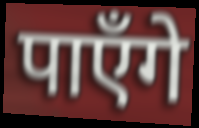
पाएँगे